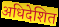
अधिदेशित